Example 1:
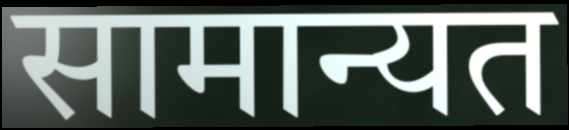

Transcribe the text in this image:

सामान्यत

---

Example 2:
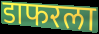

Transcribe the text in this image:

डाफरला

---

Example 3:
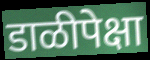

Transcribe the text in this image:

डाळीपेक्षा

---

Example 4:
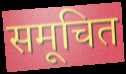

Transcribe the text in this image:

समूचित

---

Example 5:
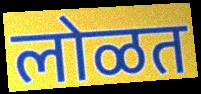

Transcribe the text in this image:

लोळत